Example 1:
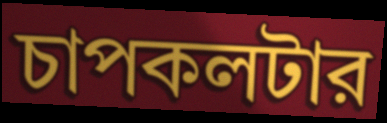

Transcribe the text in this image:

চাপকলটার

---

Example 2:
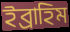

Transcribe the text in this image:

ইব্রাহিম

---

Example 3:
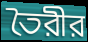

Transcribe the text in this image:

তৈরীর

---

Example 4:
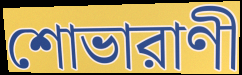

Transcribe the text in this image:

শোভারাণী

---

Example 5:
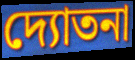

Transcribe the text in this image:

দ্যোতনা